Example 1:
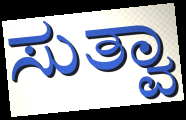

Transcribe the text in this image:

ಸುತ್ವಾ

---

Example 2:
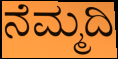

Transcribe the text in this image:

ನೆಮ್ಮದಿ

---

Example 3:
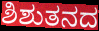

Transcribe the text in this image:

ಶಿಶುತನದ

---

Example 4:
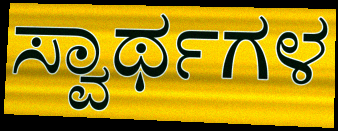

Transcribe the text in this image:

ಸ್ವಾರ್ಥಗಳ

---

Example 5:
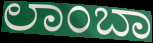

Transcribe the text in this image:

ಲಾಂಬಾ